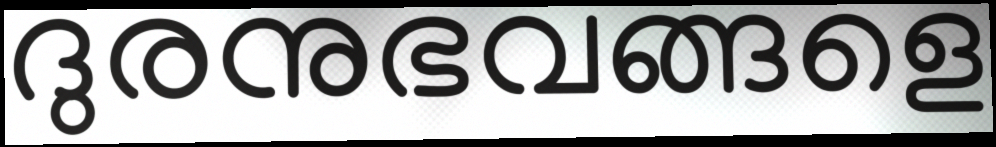
ദുരനുഭവങ്ങളെ